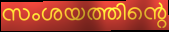
സംശയത്തിന്റെ